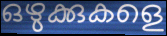
ഒഴുക്കുകളെ